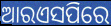
ଆରଏସପିରେ